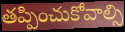
తప్పించుకోవాల్సి